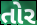
તોર